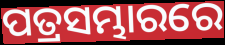
ପତ୍ରସମ୍ଭାରରେ